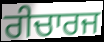
ਰੀਚਾਰਜ